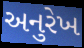
અનુરેખ